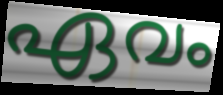
ഏവം